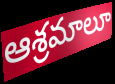
ఆశ్రమాలూ